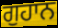
ਗੁਹਾਨ